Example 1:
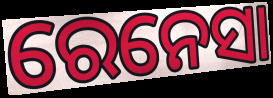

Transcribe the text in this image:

ରେନେସା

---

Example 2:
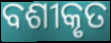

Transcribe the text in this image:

ବଶୀକୃତ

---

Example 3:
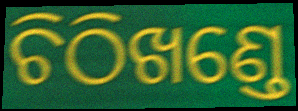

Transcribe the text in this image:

ଚିଠିଖଣ୍ଡେ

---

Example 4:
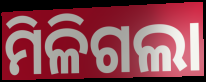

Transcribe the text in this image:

ମିଳିଗଲା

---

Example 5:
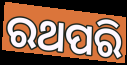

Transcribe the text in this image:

ରଥପରି